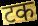
टक